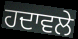
ਹਦਾਵਲੇ